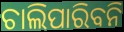
ଚାଲିପାରିବନି